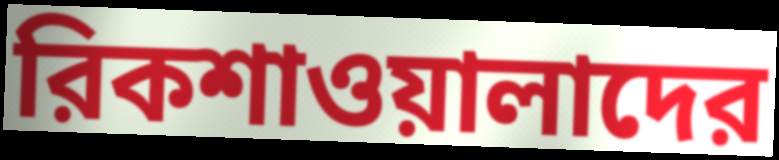
রিকশাওয়ালাদের